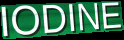
IODINE